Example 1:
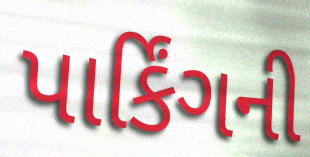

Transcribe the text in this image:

પાર્કિંગની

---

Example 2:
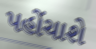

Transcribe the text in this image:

પહોંચાશે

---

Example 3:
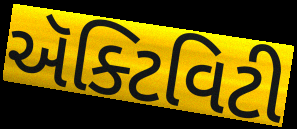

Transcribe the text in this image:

ઍક્ટિવિટી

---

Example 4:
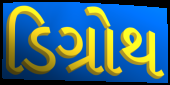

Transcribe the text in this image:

ડિગ્રોથ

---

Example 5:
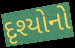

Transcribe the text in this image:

દૃશ્યોનો